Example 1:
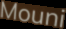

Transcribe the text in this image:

Mouni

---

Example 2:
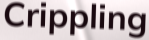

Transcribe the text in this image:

Crippling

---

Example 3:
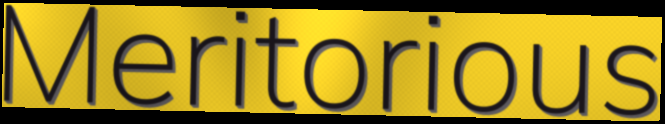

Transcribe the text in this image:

Meritorious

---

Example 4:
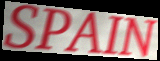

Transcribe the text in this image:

SPAIN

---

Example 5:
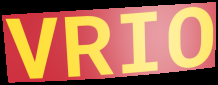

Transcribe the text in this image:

VRIO